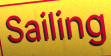
Sailing